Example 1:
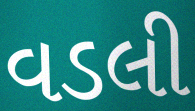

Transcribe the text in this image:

વડલી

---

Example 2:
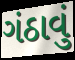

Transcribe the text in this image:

ગંઠાવું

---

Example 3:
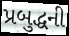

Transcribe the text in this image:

પ્રબુદ્ધની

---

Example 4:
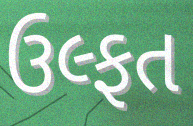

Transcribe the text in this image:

ઉલ્ફત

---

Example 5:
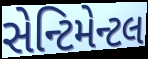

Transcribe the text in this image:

સેન્ટિમેન્ટલ